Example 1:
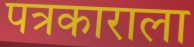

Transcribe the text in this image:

पत्रकाराला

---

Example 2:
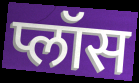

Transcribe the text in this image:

प्लॉस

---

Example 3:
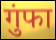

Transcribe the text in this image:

गुंफा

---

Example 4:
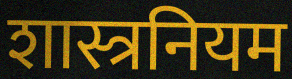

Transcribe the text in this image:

शास्त्रनियम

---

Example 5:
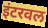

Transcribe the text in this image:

इंटरवल